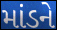
માંડને